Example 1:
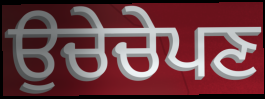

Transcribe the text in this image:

ਉਚੇਚੇਪਣ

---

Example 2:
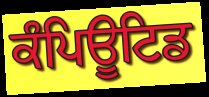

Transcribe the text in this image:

ਕੰਪਿਊਟਿਡ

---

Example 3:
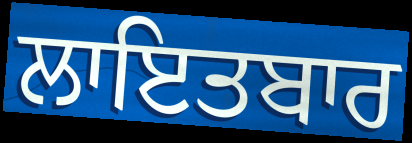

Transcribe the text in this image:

ਲਾਇਤਬਾਰ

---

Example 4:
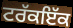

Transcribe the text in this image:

ਟਰੱਕਇੱਕ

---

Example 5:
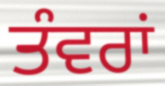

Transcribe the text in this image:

ਤੰਵਰਾਂ